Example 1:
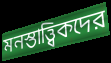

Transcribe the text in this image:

মনস্তাত্ত্বিকদের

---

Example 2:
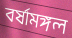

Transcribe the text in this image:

বর্ষামঙ্গল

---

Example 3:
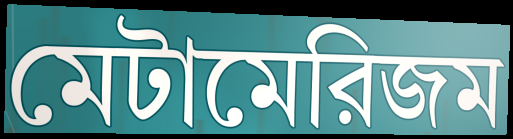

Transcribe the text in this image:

মেটামেরিজম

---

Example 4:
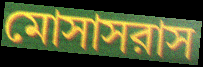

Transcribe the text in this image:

মোসাসরাস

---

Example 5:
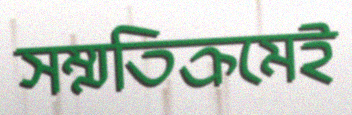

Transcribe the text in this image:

সম্মতিক্রমেই